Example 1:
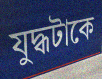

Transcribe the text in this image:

যুদ্ধটাকে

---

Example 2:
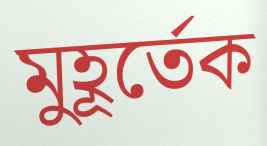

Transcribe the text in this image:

মুহূর্তেক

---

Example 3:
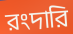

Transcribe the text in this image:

রংদারি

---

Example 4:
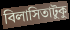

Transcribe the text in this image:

বিলাসিতাটুকু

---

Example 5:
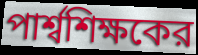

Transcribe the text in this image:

পার্শ্বশিক্ষকের